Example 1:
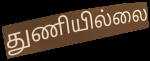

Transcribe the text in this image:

துணியில்லை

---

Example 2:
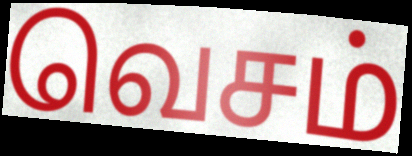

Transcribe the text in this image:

வெசம்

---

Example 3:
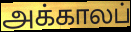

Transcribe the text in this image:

அக்காலப்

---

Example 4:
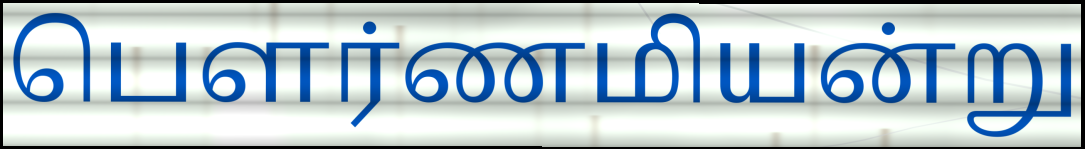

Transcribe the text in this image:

பெளர்ணமியன்று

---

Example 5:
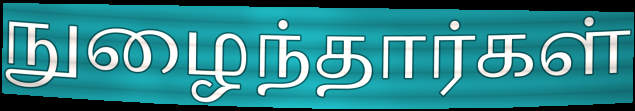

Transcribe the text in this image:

நுழைந்தார்கள்